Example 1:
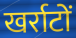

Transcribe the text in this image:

खर्राटों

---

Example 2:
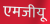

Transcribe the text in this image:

एमजीयू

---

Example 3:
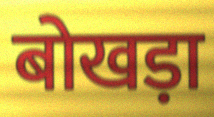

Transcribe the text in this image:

बोखड़ा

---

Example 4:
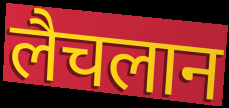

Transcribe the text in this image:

लैचलान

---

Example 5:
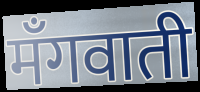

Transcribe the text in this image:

मँगवाती